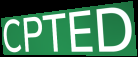
CPTED